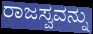
ರಾಜಸ್ವವನ್ನು